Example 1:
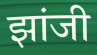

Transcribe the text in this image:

झांजी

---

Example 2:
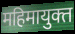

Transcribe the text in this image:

महिमायुक्‍त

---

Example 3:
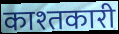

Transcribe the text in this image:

काश्तकारी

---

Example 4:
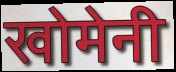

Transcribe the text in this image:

खोमेनी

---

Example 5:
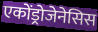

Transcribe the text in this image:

एकोंड्रोजेनेसिस